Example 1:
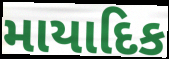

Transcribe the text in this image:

માયાદિક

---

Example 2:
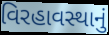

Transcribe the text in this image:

વિરહાવસ્થાનું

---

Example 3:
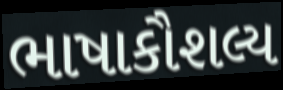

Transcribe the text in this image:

ભાષાકૌશલ્ય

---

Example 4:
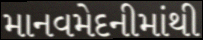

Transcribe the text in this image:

માનવમેદનીમાંથી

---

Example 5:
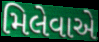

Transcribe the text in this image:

મિલેવાએ